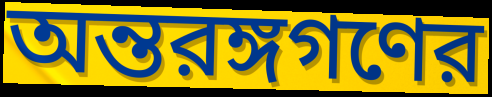
অন্তরঙ্গগণের